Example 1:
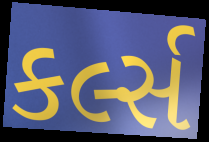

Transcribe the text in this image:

કર્લ્સ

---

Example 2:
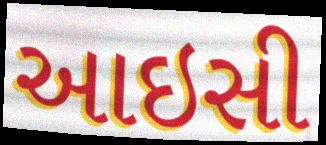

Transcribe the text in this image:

આઇસી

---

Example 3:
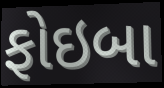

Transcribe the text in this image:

ફોઇબા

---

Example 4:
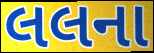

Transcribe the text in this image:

લલના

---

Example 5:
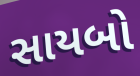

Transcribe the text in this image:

સાયબો